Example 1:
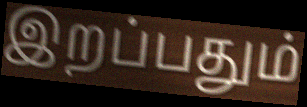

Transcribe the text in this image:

இறப்பதும்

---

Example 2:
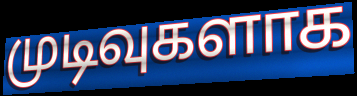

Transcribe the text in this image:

முடிவுகளாக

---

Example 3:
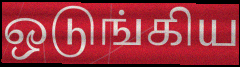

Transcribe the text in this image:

ஒடுங்கிய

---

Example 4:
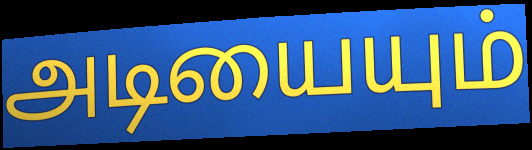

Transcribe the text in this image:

அடியையும்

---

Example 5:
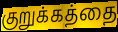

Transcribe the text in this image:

குறுக்கத்தை